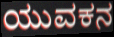
ಯುವಕನ